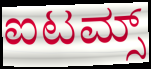
ಐಟಮ್ಸ್